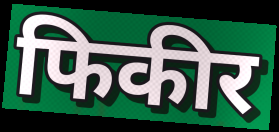
फिकीर